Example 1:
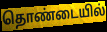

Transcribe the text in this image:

தொண்டையில்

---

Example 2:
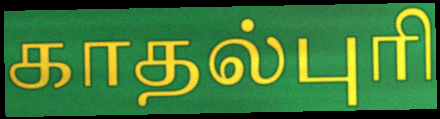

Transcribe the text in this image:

காதல்புரி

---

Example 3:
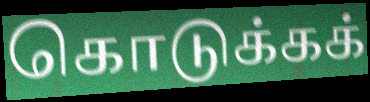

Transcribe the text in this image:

கொடுக்கக்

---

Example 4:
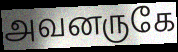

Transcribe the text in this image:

அவனருகே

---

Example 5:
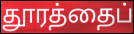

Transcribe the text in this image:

தூரத்தைப்